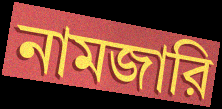
নামজারি